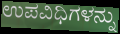
ಉಪವಿಧಿಗಳನ್ನು